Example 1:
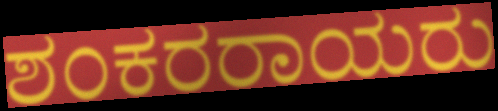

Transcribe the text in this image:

ಶಂಕರರಾಯರು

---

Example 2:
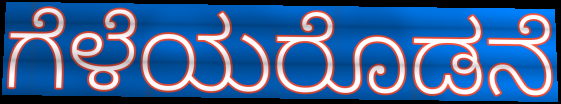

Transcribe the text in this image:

ಗೆಳೆಯರೊಡನೆ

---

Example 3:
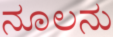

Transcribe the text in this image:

ನೂಲನು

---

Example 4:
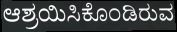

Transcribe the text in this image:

ಆಶ್ರಯಿಸಿಕೊಂಡಿರುವ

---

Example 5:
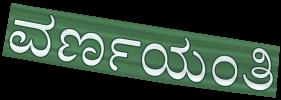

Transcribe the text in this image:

ವರ್ಣಯಂತಿ